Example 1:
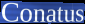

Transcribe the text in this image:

Conatus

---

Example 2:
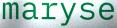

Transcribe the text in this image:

maryse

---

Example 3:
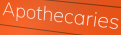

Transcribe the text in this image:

Apothecaries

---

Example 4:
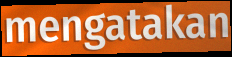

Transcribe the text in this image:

mengatakan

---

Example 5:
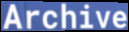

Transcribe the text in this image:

Archive